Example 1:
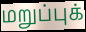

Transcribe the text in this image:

மறுப்புக்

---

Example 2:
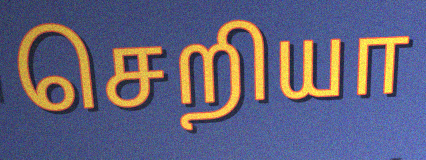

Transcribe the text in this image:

செறியா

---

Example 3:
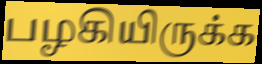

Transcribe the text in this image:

பழகியிருக்க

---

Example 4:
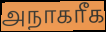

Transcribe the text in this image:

அநாகரீக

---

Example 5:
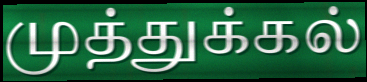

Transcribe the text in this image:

முத்துக்கல்